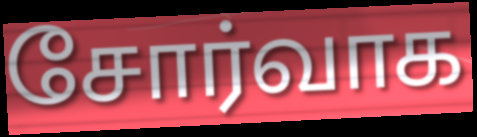
சோர்வாக